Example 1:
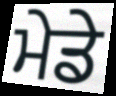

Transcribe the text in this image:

ਮੇਡੇ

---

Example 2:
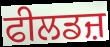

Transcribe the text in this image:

ਫੀਲਡਜ਼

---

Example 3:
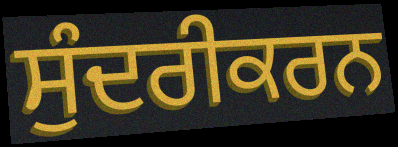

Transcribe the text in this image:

ਸੁੰਦਰੀਕਰਨ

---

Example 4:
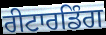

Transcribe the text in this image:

ਰੀਟਾਰਡਿੰਗ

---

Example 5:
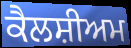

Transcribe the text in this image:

ਕੈਲਸ਼ੀਅਮ